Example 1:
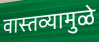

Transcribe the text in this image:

वास्तव्यामुळे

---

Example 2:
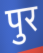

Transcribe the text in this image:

पुर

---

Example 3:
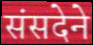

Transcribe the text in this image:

संसदेने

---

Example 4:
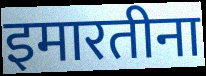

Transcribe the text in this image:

इमारतीना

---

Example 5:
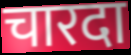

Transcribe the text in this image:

चारदा